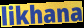
likhana